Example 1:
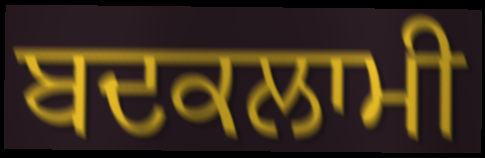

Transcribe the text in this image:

ਬਦਕਲਾਮੀ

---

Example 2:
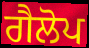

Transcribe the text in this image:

ਗੈਲੋਪ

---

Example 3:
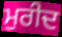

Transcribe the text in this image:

ਮੁਰੀਦ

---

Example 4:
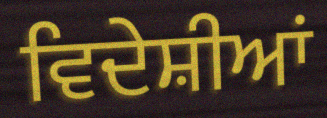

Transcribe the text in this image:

ਵਿਦੇਸ਼ੀਆਂ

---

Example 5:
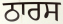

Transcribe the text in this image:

ਠਾਰਸ